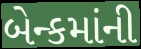
બેન્કમાંની